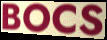
BOCS